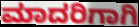
ಮಾದರಿಗಾಗಿ